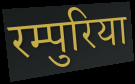
रम्पुरिया